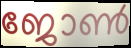
ജോൺ